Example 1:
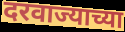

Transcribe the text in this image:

दरवाज्याच्या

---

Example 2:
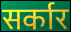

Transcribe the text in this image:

सर्कार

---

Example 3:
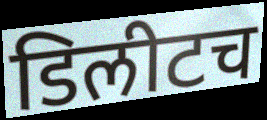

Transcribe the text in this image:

डिलीटच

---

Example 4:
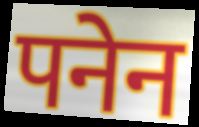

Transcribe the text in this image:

पनेन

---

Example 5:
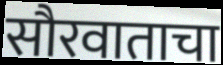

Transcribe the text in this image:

सौरवाताचा